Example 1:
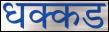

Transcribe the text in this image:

धक्कड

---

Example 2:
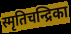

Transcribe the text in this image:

स्मृतिचन्द्रिका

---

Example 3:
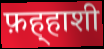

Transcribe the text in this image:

फ़ह्हाशी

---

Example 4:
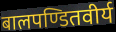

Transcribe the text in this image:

बालपण्डितवीर्य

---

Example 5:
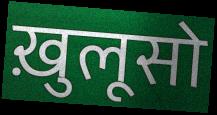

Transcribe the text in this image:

ख़ुलूसो